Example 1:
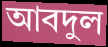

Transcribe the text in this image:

আবদুল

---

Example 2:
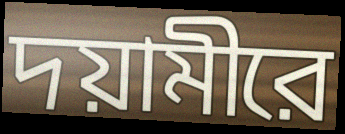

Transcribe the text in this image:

দয়ামীরে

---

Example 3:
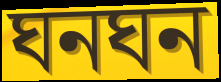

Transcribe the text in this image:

ঘনঘন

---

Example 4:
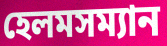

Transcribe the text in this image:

হেলমসম্যান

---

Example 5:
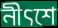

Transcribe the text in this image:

নীৎশে